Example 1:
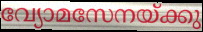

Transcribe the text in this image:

വ്യോമസേനയ്ക്കു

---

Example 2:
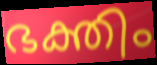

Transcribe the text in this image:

ഭക്തിം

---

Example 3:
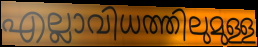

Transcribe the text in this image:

എല്ലാവിധത്തിലുമുള്ള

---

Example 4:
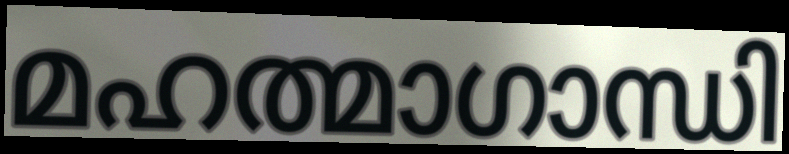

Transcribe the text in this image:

മഹത്മാഗാന്ധി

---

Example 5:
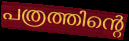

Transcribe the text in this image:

പത്രത്തിന്റെ